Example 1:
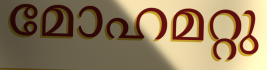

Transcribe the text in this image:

മോഹമറ്റു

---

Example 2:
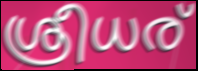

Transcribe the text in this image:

ശ്രീധര്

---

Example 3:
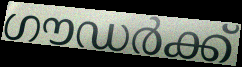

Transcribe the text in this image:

ഗൗഡർക്ക്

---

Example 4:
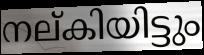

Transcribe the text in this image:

നല്കിയിട്ടും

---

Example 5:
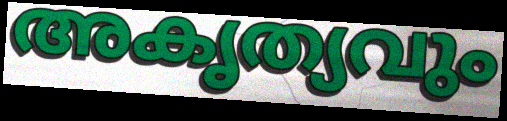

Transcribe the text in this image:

അകൃത്യവും